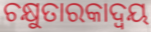
ଚକ୍ଷୁତାରକାଦ୍ଵୟ